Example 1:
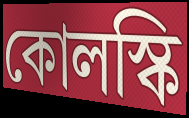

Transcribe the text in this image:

কোলস্কি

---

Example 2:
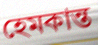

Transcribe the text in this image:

হেমকান্ত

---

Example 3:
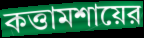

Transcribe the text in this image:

কত্তামশায়ের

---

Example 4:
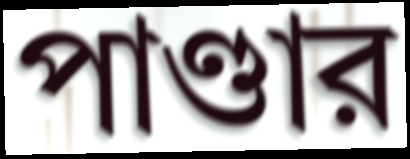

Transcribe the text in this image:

পাণ্ডার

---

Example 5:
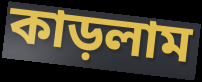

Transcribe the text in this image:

কাড়লাম